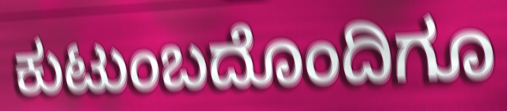
ಕುಟುಂಬದೊಂದಿಗೂ